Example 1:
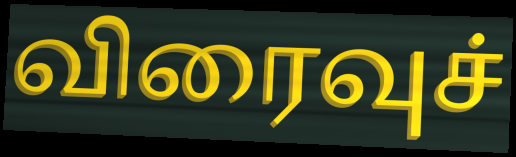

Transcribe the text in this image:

விரைவுச்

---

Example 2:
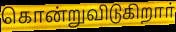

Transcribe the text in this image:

கொன்றுவிடுகிறார்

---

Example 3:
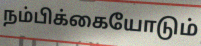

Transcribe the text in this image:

நம்பிக்கையோடும்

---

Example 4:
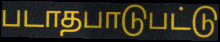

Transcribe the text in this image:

படாதபாடுபட்டு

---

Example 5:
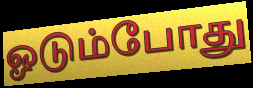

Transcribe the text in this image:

ஓடும்போது